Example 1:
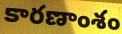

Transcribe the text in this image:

కారణాంశం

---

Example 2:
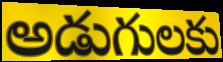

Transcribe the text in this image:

అడుగులకు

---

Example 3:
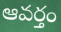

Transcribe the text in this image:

ఆవర్తం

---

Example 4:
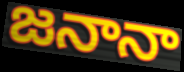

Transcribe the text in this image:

జనానా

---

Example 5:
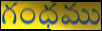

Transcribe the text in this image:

గంధము